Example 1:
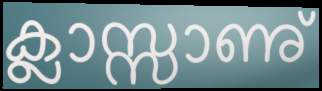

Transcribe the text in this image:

ക്ലാസ്സാണു്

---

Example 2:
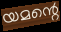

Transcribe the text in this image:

യമന്റെ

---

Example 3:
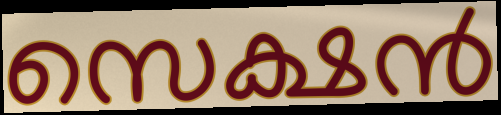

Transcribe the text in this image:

സെക്ഷൻ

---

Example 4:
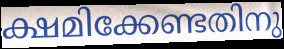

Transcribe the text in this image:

ക്ഷമിക്കേണ്ടതിനു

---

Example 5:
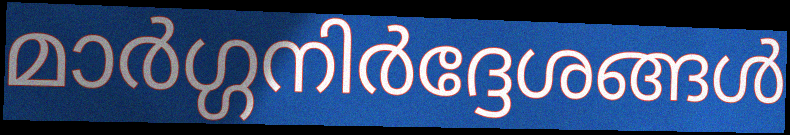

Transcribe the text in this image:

മാർഗ്ഗനിർദ്ദേശങ്ങൾ